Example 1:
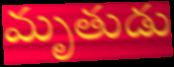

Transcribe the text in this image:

మృతుడు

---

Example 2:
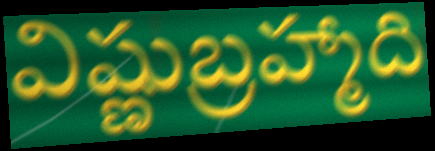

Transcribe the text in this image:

విష్ణుబ్రహ్మాది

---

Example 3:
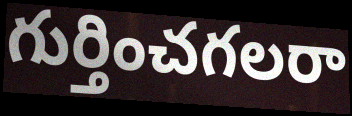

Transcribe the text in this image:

గుర్తించగలరా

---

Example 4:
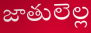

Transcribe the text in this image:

జాతులెల్ల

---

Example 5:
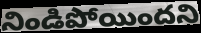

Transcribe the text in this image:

నిండిపోయిందని